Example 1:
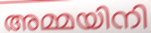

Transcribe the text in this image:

അമ്മയിനി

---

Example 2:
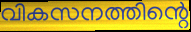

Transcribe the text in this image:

വികസനത്തിന്റെ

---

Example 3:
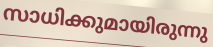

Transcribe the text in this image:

സാധിക്കുമായിരുന്നു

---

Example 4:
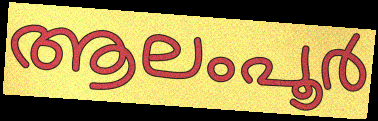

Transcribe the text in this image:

ആലംപൂർ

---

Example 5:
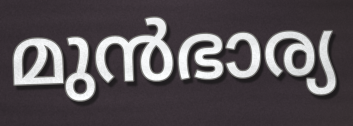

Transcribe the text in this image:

മുൻഭാര്യ